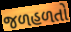
જળહળતો